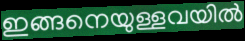
ഇങ്ങനെയുള്ളവയിൽ